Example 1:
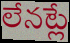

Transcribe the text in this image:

లేనట్లే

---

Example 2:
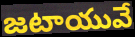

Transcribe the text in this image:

జటాయువే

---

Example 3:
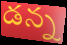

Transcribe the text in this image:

డన్న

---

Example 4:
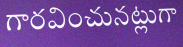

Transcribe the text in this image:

గారవించునట్లుగా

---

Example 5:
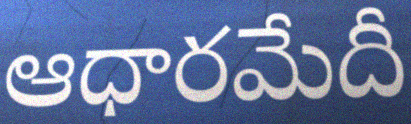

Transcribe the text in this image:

ఆధారమేదీ